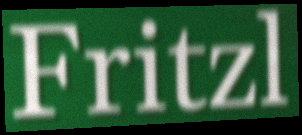
Fritzl